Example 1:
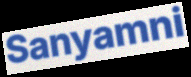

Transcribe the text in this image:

Sanyamni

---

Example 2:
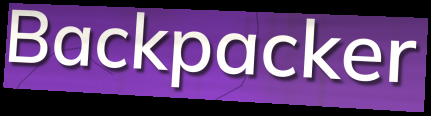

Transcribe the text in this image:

Backpacker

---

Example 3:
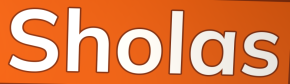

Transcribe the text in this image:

Sholas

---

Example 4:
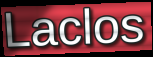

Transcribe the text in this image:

Laclos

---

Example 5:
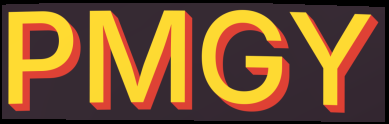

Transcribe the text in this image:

PMGY